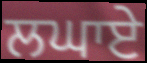
ਲਘਾਏ